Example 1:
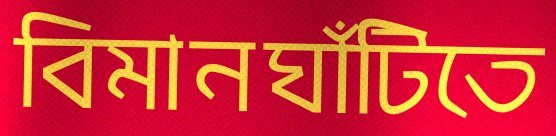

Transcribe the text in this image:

বিমানঘাঁটিতে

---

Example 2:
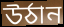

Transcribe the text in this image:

উঠান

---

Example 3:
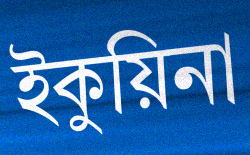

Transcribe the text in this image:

ইকুয়িনা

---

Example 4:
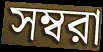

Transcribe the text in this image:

সম্বরা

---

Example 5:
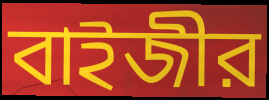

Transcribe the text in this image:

বাইজীর